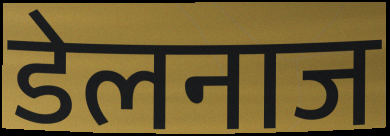
डेलनाज